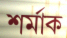
শৰ্মাক